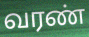
வரண்